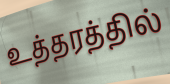
உத்தரத்தில்